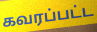
கவரப்பட்ட